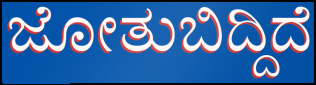
ಜೋತುಬಿದ್ದಿದೆ